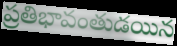
ప్రతిభావంతుడయిన